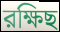
রক্ষিছ